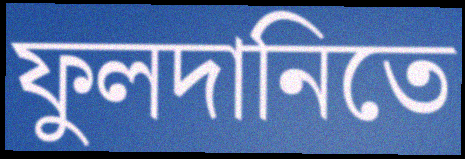
ফুলদানিতে